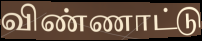
விண்ணாட்டு